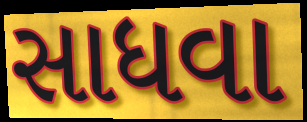
સાધવા